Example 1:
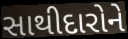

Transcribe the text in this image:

સાથીદારોને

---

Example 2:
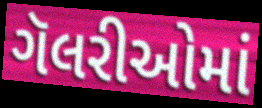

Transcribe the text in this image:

ગૅલરીઓમાં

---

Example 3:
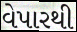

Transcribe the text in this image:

વેપારથી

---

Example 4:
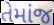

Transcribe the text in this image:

તેમાંજ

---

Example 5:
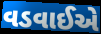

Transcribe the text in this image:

વડવાઈએ